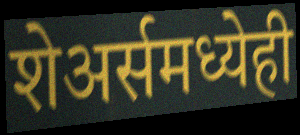
शेअर्समध्येही